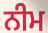
ਨੀਮ